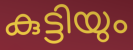
കുട്ടിയും